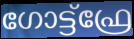
ഗോട്ട്ഫ്രേ